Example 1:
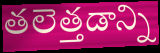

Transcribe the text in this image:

తలెత్తడాన్ని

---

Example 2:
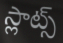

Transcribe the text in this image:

స్లాట్స్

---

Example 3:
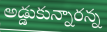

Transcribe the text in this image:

అడ్డుకున్నారన్న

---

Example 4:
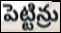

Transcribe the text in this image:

పెట్టిన్రు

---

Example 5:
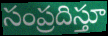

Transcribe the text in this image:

సంప్రదిస్తూ